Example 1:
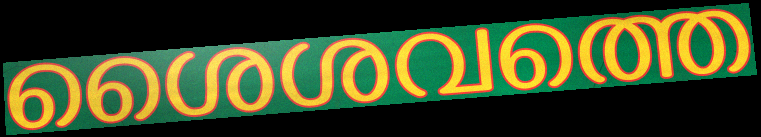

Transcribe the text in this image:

ശൈശവത്തെ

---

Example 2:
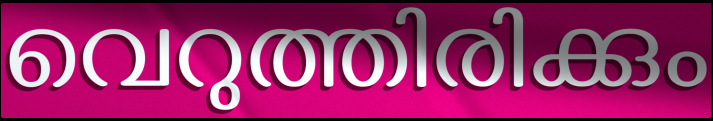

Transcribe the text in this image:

വെറുത്തിരിക്കും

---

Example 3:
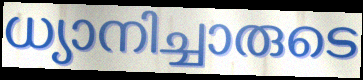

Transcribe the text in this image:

ധ്യാനിച്ചാരുടെ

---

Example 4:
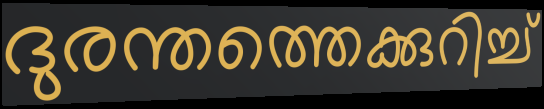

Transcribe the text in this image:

ദുരന്തത്തെക്കുറിച്ച്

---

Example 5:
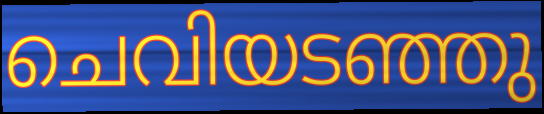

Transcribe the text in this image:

ചെവിയടഞ്ഞു